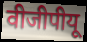
वीजीपीयू